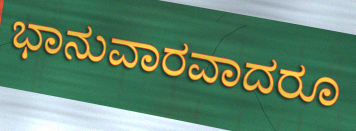
ಭಾನುವಾರವಾದರೂ